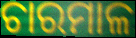
ଚାରମାଳ